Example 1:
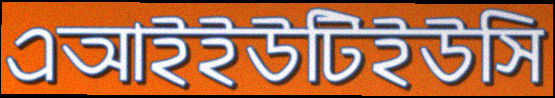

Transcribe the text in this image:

এআইইউটিইউসি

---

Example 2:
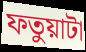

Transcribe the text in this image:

ফতুয়াটা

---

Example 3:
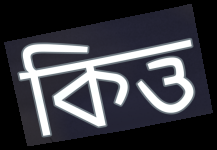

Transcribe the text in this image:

কিত্ত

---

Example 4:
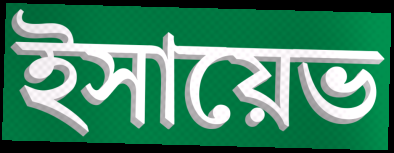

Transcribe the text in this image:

ইসায়েভ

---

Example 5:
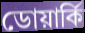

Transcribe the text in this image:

ডোয়ার্কি